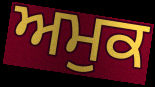
ਅਮੁਕ